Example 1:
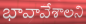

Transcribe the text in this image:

భావావేశాలని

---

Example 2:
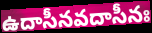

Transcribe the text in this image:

ఉదాసీనవదాసీనః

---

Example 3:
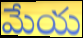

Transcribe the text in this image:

మేయ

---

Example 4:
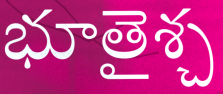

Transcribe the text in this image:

భూతైశ్చ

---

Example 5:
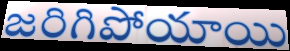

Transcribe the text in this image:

జరిగిపోయాయి